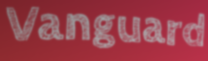
Vanguard